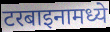
टरबाइनामध्ये